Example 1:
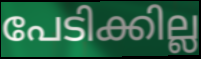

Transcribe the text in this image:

പേടിക്കില്ല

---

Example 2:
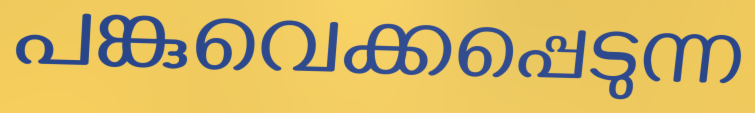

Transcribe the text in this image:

പങ്കുവെക്കപ്പെടുന്ന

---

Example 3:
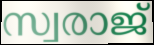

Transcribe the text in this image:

സ്വരാജ്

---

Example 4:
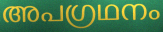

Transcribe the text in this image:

അപഗ്രഥനം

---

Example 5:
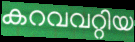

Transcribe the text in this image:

കറവവറ്റിയ